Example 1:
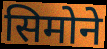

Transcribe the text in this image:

सिमोने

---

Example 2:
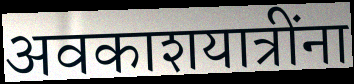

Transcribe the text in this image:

अवकाशयात्रींना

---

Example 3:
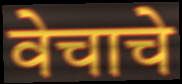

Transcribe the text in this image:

वेचाचे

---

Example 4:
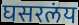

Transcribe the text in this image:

घसरलंय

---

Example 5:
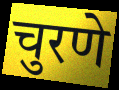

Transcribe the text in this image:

चुरणे